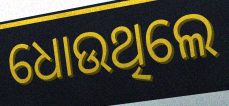
ଧୋଉଥିଲେ